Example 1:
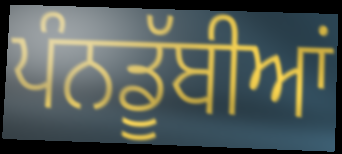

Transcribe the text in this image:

ਪੰਨਡੂੱਬੀਆਂ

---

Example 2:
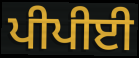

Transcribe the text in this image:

ਪੀਪੀਈ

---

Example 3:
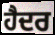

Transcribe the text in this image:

ਹੈਦਰ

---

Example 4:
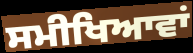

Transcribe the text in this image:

ਸਮੀਖਿਆਵਾਂ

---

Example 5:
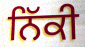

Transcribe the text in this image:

ਨਿੱਕੀ